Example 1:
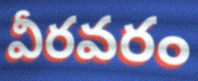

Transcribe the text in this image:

వీరవరం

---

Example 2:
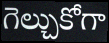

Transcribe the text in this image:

గెల్చుకోగా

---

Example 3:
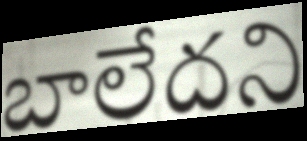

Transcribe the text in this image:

బాలేదని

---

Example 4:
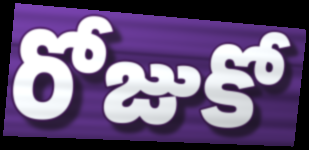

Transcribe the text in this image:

రోజుకో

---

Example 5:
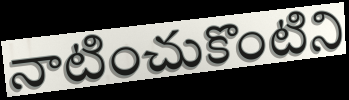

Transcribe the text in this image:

నాటించుకొంటిని